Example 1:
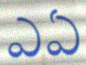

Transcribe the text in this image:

ఎఏ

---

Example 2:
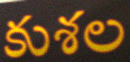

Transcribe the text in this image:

కుశల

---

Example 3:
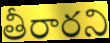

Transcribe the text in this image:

తీరారని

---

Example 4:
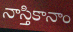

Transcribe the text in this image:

నాస్తికానాం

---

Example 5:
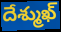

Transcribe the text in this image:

దేశ్ముఖ్